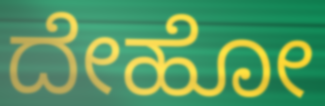
ದೇಹೋ